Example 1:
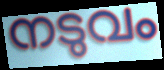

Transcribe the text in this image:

നടുവം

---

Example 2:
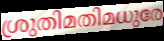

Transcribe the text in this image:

ശ്രുതിമതിമധുരേ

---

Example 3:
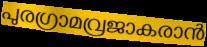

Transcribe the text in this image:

പുരഗ്രാമവ്രജാകരാൻ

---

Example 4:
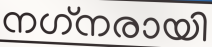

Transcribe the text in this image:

നഗ്‌നരായി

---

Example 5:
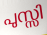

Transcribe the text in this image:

പുസ്സി